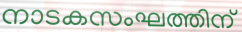
നാടകസംഘത്തിന്